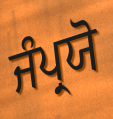
ਜੰਪ੍ਰਯੋ